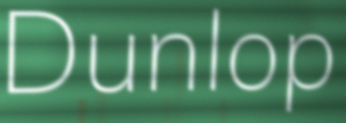
Dunlop